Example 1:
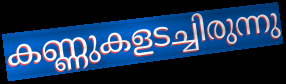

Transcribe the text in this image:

കണ്ണുകളടച്ചിരുന്നു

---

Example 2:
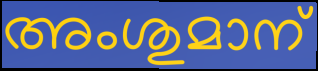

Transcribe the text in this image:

അംശുമാന്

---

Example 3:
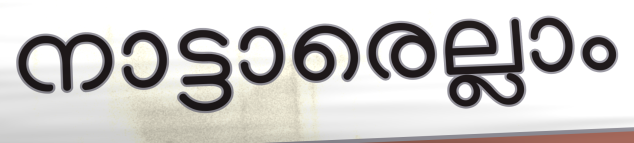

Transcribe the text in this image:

നാട്ടാരെല്ലാം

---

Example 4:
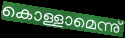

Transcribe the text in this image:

കൊള്ളാമെന്നു്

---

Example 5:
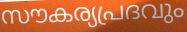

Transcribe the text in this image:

സൗകര്യപ്രദവും